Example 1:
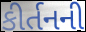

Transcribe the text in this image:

કીર્તનની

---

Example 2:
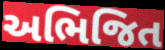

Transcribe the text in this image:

અભિજિત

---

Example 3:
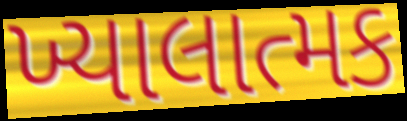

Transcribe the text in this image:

ખ્યાલાત્મક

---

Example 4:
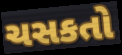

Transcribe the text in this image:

ચસકતો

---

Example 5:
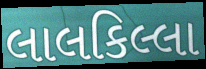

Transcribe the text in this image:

લાલકિલ્લા